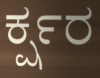
ರ್ಕ್ಷರ